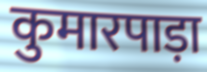
कुमारपाड़ा